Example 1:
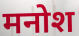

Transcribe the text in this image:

मनोश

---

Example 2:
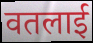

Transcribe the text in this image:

वतलाई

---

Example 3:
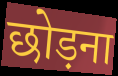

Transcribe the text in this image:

छोड़ना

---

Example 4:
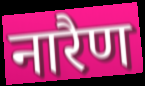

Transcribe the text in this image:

नारैण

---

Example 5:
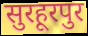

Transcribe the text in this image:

सुरहूरपुर